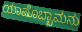
ಯಾಷೊಬ್ಬಾಮನು